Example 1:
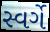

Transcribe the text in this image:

સ્વર્ગે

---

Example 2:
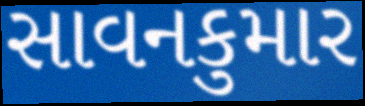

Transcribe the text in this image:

સાવનકુમાર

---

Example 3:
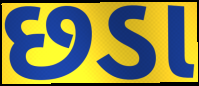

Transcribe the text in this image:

છડા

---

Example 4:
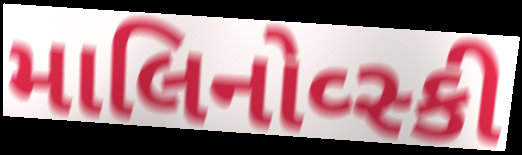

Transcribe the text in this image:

માલિનોવ્સ્કી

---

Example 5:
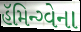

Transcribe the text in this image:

હૅમિન્ગ્વેના